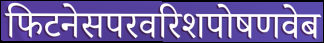
फिटनेसपरवरिशपोषणवेब